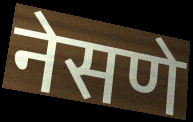
नेसणे